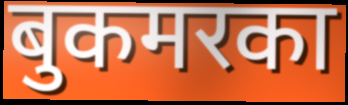
बुकमरका